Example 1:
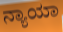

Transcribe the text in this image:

ನ್ಯಾಯಾ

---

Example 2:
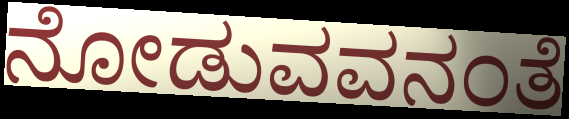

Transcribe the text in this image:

ನೋಡುವವನಂತೆ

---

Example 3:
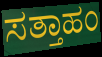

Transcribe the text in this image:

ಸತ್ತಾಹಂ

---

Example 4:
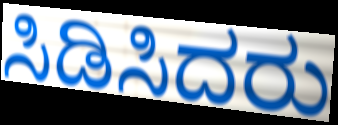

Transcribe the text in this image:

ಸಿಡಿಸಿದರು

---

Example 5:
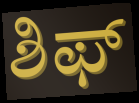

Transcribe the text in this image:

ಶಿಫ್